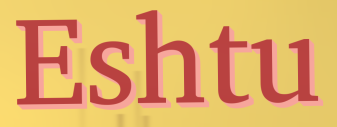
Eshtu